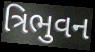
ત્રિભુવન